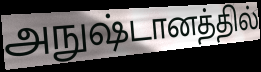
அநுஷ்டானத்தில்